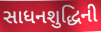
સાધનશુદ્ધિની